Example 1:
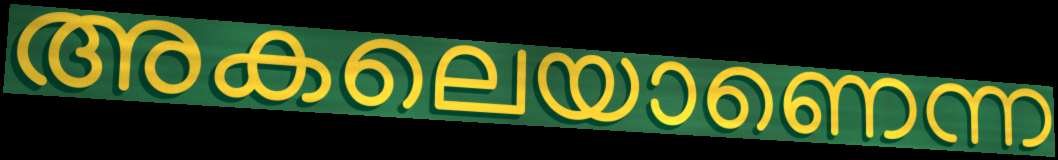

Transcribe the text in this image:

അകലെയാണെന്ന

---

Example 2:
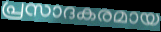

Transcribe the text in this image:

പ്രസാദകരമായ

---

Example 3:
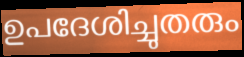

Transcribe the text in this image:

ഉപദേശിച്ചുതരും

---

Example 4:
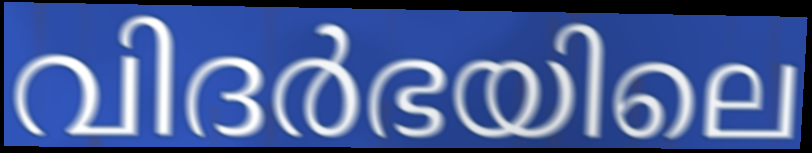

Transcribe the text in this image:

വിദർഭയിലെ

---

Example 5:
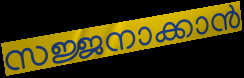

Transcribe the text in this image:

സജ്ജനാക്കാൻ